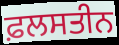
ਫ਼ਲਸਤੀਨ